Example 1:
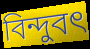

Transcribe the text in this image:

বিন্দুবৎ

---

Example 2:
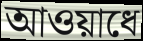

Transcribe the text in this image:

আওয়াধে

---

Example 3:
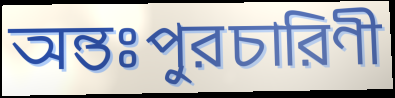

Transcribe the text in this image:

অন্তঃপুরচারিণী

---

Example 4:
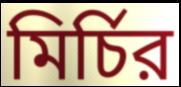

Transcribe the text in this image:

মির্চির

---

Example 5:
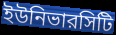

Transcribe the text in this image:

ইউনিভারসিটি